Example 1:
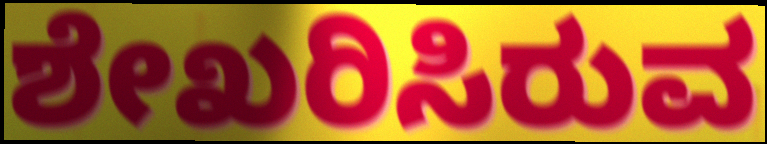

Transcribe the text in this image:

ಶೇಖರಿಸಿರುವ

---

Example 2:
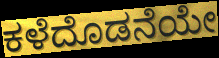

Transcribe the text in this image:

ಕಳೆದೊಡನೆಯೇ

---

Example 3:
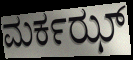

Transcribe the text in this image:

ಮರ್ಕಝ್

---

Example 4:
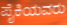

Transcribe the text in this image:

ಪೈಕಿಯವರು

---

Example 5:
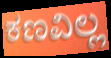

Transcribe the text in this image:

ಕಣವಿಲ್ಲ